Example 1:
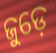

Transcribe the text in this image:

ଜୁଡ଼େ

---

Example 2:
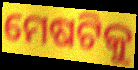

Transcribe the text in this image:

ମେଷଟିକୁ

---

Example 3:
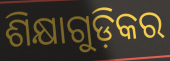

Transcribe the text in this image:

ଶିକ୍ଷାଗୁଡ଼ିକର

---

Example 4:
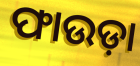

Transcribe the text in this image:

ଫାଉଡ଼ା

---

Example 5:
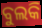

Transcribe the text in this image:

ବୁଲକି